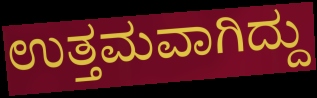
ಉತ್ತಮವಾಗಿದ್ದು